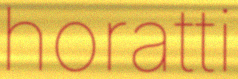
horatti